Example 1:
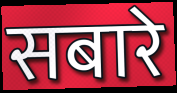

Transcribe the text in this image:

सबारे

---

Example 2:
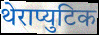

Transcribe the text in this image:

थेराप्युटिक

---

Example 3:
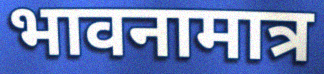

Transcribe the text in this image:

भावनामात्र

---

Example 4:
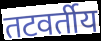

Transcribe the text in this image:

तटवर्तीय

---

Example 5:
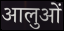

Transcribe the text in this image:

आलुओं